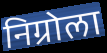
निग्रोला